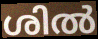
ശിൽ